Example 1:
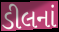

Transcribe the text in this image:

ડીલનાં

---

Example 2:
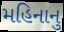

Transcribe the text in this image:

મહિનાનુ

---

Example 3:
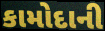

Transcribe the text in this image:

કામોદાની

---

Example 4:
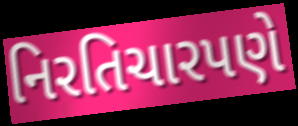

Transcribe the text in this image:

નિરતિચારપણે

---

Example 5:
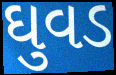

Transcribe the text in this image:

ઘુવડ